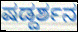
ಷಡ್ದರ್ಶನ